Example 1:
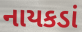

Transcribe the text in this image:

નાયકડાં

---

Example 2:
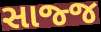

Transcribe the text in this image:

સાજ્જ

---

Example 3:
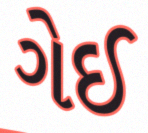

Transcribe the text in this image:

ગેઈ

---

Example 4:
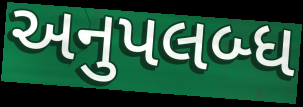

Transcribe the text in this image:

અનુપલબ્ધ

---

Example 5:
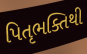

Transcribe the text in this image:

પિતૃભક્તિથી